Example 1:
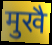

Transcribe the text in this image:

मुखै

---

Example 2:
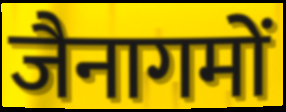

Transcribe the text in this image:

जैनागमों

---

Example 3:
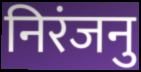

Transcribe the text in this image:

निरंजनु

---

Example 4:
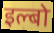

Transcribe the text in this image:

इल्बो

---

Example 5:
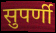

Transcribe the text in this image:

सुपर्णी